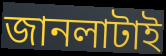
জানলাটাই